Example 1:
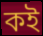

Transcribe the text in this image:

কই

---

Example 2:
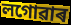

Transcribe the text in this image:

লগোৱাৰ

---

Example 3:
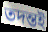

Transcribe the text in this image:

তদন্তই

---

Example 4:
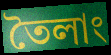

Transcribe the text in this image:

তৈলাং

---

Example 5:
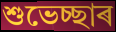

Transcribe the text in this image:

শুভেচ্ছাৰ